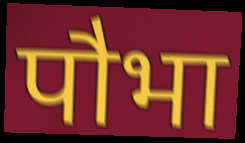
पौभा